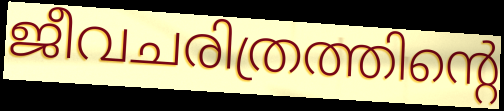
ജീവചരിത്രത്തിന്റെ